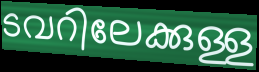
ടവറിലേക്കുള്ള